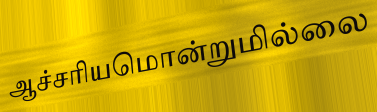
ஆச்சரியமொன்றுமில்லை